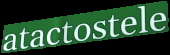
atactostele